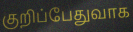
குறிப்பேதுவாக